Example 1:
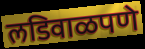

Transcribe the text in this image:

लडिवाळपणे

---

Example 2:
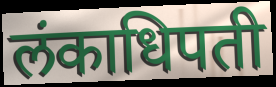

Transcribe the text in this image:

लंकाधिपती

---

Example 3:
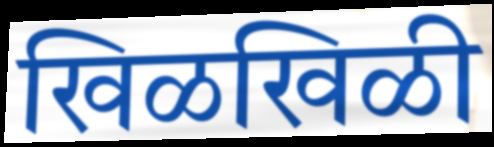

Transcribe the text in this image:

खिळखिळी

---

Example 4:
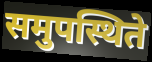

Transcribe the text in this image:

समुपस्थिते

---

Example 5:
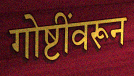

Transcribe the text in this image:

गोष्टींवरून